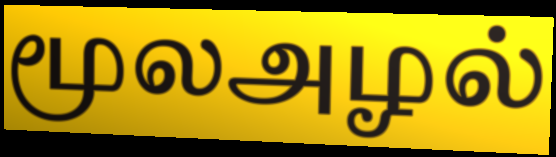
மூலஅழல்